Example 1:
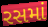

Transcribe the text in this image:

રસમાં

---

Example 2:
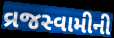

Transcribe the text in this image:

વ્રજસ્વામીની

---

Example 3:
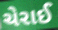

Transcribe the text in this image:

ચેરાઈ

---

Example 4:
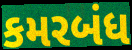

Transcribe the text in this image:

કમરબંધ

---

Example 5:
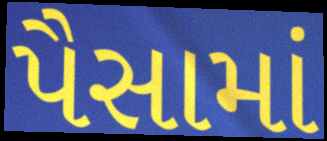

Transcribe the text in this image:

પૈસામાં